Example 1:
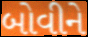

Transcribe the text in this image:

બોવીને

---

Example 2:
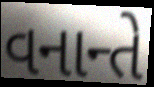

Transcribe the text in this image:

વનાન્તે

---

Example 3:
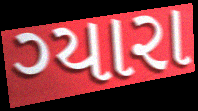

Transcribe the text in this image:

ગ્યારા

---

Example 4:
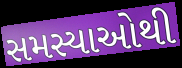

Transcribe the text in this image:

સમસ્યાઓથી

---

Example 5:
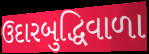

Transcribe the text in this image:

ઉદારબુદ્ધિવાળા